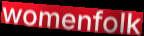
womenfolk